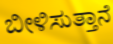
ಬೀಳಿಸುತ್ತಾನೆ